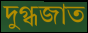
দুগ্ধজাত